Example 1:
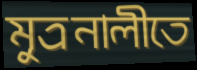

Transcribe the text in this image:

মুত্রনালীতে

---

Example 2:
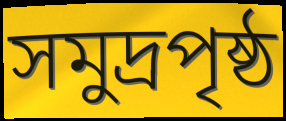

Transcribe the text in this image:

সমুদ্রপৃষ্ঠ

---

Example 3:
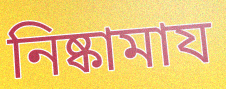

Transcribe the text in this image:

নিষ্কামায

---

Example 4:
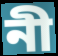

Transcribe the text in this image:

নী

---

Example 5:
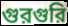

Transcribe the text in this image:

গুরগুরি